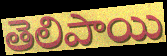
తెలిపాయి